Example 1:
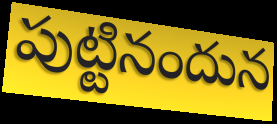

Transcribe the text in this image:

పుట్టినందున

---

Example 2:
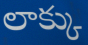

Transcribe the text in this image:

లాక్కు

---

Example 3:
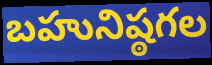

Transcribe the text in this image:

బహునిష్ఠగల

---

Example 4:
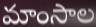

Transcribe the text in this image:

మాంసాల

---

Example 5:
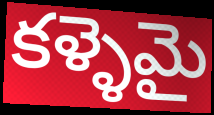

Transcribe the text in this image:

కళ్ళెమై